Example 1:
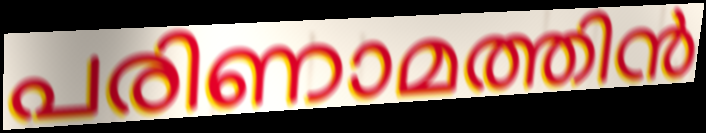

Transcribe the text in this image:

പരിണാമത്തിൻ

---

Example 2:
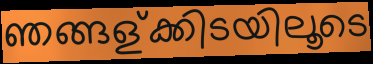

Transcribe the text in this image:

ഞങ്ങള്ക്കിടയിലൂടെ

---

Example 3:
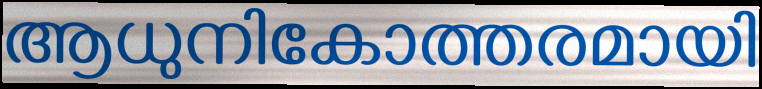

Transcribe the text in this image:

ആധുനികോത്തരമായി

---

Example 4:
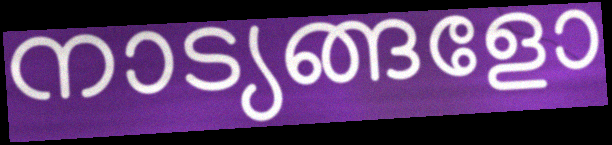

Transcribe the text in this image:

നാട്യങ്ങളോ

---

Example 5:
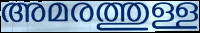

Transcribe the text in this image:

അമരത്തുള്ള